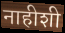
नाहीशी